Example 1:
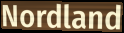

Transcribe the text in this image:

Nordland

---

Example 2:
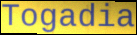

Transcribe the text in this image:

Togadia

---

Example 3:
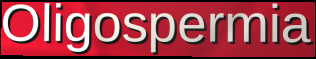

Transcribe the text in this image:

Oligospermia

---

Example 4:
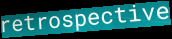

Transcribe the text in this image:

retrospective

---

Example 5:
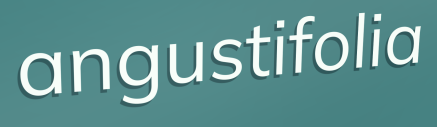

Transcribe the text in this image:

angustifolia